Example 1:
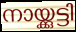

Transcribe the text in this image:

നായ്ക്കുട്ടി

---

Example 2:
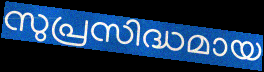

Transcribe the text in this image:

സുപ്രസിദ്ധമായ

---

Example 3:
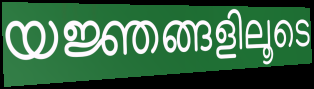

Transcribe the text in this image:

യജ്ഞങ്ങളിലൂടെ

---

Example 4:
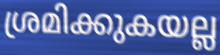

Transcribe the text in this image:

ശ്രമിക്കുകയല്ല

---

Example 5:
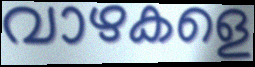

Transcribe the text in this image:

വാഴകളെ